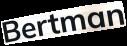
Bertman